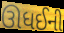
ઊધઈની